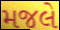
મજલે